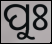
ପୁଃ